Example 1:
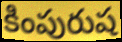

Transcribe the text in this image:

కింపురుష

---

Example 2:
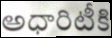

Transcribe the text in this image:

అధారిటీకి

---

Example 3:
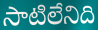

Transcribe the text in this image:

సాటిలేనిది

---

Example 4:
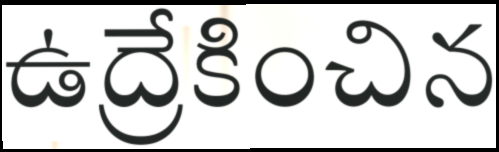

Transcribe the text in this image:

ఉద్రేకించిన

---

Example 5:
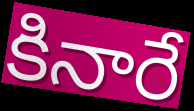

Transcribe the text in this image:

కినారే